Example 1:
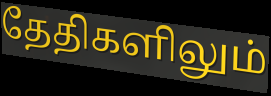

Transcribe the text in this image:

தேதிகளிலும்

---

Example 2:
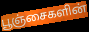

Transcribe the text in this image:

பூஞ்சைகளின்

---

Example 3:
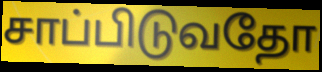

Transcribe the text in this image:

சாப்பிடுவதோ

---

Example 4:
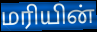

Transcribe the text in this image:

மரியின்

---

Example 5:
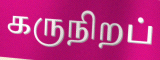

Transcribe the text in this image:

கருநிறப்